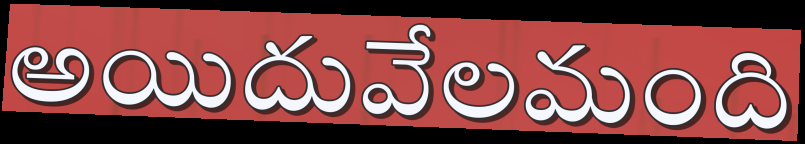
అయిదువేలమంది